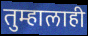
तुम्हालाही